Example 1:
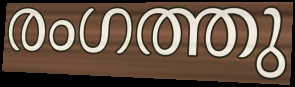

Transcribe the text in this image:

രംഗത്തു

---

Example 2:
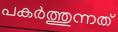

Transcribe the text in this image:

പകർത്തുന്നത്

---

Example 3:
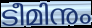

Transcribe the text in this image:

ടീമിനും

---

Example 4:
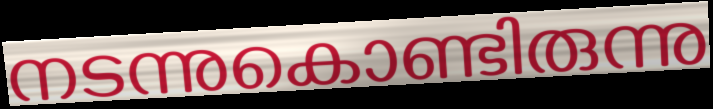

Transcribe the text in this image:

നടന്നുകൊണ്ടിരുന്നു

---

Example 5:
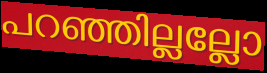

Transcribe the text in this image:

പറഞ്ഞില്ലല്ലോ